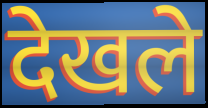
देखले